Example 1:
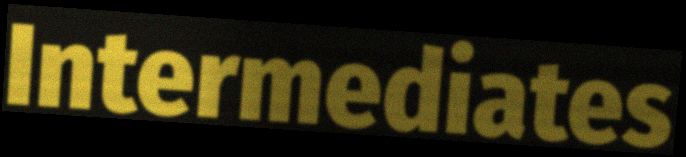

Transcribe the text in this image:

Intermediates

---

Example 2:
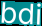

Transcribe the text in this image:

bdi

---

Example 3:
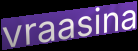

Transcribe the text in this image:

vraasina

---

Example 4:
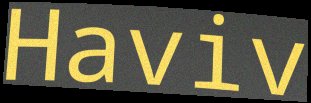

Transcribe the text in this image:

Haviv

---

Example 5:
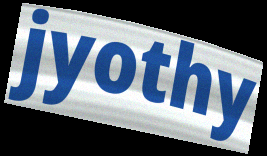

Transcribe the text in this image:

jyothy